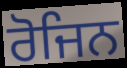
ਰੋਜਿਨ